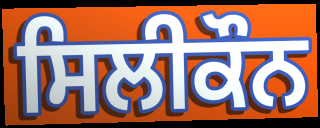
ਸਿਲੀਕੌਨ